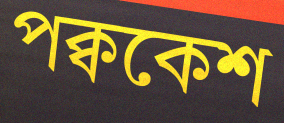
পক্বকেশ